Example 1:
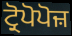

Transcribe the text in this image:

ਟ੍ਰੋਪੋਪੋਜ਼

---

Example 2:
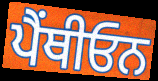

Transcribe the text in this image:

ਪੈਂਥੀਓਨ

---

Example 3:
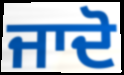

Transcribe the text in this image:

ਜਾਦੋ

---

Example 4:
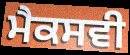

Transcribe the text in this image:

ਮੈਕਸਵੀ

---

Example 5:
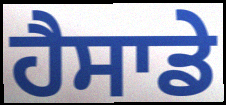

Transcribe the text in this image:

ਹੈਸਾਡੇ